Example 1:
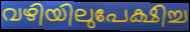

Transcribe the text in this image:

വഴിയിലുപേക്ഷിച്ച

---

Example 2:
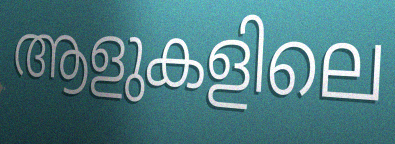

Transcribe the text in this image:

ആളുകളിലെ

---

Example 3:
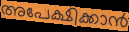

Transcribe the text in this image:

അപേക്ഷിക്കാൻ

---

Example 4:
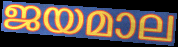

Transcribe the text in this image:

ജയമാല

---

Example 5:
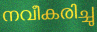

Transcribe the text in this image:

നവീകരിച്ചു